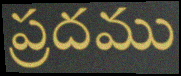
ప్రదము